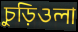
চুড়িওলা